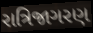
રાત્રિજાગરણ